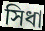
সিধা